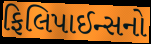
ફિલિપાઈન્સનો